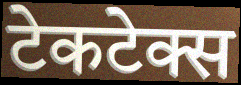
टेकटेक्स